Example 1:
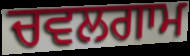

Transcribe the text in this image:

ਚਵਲਗਾਮ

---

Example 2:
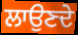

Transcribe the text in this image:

ਲਾਉਣਦੇ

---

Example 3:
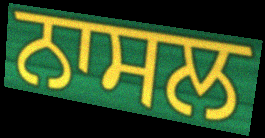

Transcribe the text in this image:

ਨਾਸਲ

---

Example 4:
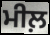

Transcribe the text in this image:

ਮੀਲ਼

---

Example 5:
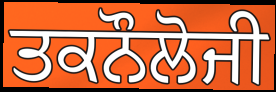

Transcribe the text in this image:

ਤਕਨੌਲੋਜੀ